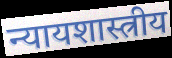
न्यायशास्त्रीय